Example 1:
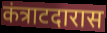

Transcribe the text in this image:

कंत्राटदारास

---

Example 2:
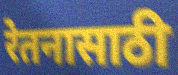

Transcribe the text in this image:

रेतनासाठी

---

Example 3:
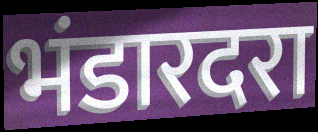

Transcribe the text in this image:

भंडारदरा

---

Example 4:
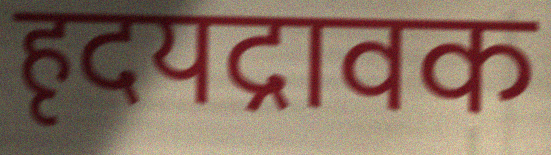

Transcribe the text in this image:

हृदयद्रावक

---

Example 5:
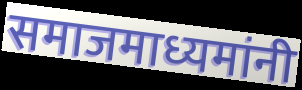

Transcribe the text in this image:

समाजमाध्यमांनी